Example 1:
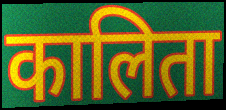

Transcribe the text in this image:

कालिता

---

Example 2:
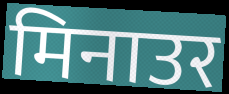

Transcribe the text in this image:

मिनाउर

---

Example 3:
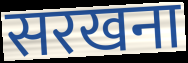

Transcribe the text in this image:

सरखना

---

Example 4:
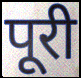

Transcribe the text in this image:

पूरी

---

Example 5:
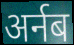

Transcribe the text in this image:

अर्नब